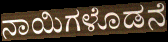
ನಾಯಿಗಳೊಡನೆ